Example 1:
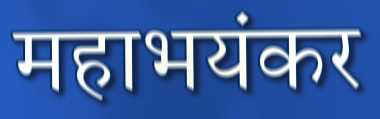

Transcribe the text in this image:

महाभयंकर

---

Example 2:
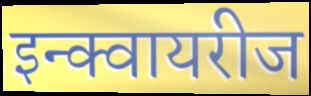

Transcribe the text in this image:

इन्क्वायरीज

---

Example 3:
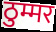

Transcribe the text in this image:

ठुम्मर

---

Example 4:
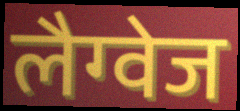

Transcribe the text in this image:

लैग्वेज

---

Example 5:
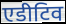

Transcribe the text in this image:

एडीटिव